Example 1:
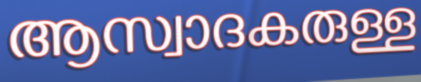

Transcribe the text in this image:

ആസ്വാദകരുള്ള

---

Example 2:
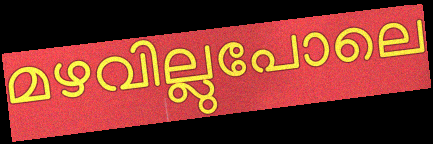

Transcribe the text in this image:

മഴവില്ലുപോലെ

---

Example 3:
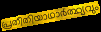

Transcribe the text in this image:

പ്രതീതിയാഥാർത്ഥ്യവും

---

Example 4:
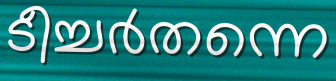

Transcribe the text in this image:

ടീച്ചർതന്നെ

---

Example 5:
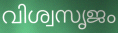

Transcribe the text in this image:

വിശ്വസൃജം